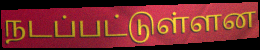
நடப்பட்டுள்ளன